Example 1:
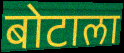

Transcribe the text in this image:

बोटाला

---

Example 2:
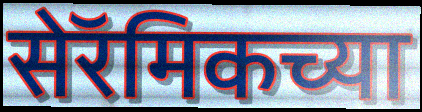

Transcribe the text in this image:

सेरॅमिकच्या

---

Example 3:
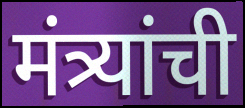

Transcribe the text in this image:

मंत्र्यांची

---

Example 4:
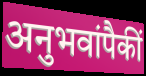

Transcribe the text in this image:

अनुभवांपैकीं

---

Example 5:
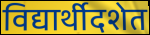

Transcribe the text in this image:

विद्यार्थीदशेत